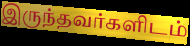
இருந்தவர்களிடம்